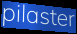
pilaster